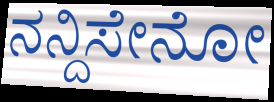
ನನ್ದಿಸೇನೋ